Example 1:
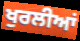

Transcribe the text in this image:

ਖੁਰਲੀਆਂ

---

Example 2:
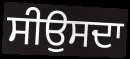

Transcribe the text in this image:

ਸੀਉਸਦਾ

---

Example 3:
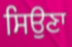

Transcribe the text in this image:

ਸਿਉਣਾ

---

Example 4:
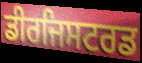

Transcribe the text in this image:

ਡੀਰਜਿਸਟਰਡ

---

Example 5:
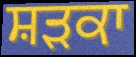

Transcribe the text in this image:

ਸ਼ੜਕਾ